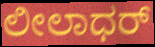
ಲೀಲಾಧರ್